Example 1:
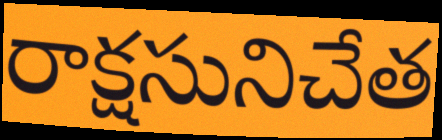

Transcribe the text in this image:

రాక్షసునిచేత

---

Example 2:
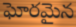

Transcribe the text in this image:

ఘోరమైన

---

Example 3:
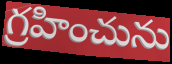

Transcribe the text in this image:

గ్రహించును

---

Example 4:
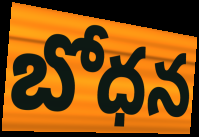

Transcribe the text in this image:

బోధన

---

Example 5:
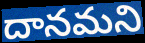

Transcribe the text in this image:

దానమని